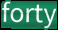
forty